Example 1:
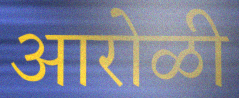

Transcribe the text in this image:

आरोळी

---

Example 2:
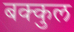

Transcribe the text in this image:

बक्कुल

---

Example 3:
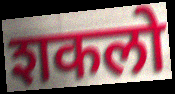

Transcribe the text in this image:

शकलो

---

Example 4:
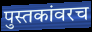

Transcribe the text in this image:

पुस्तकांवरच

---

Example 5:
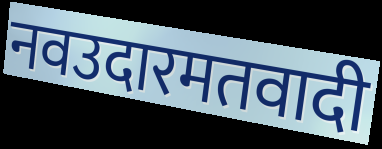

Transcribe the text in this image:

नवउदारमतवादी